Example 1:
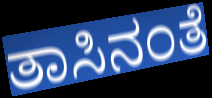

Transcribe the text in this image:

ತಾಸಿನಂತೆ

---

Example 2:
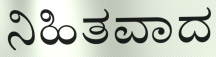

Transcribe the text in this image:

ನಿಹಿತವಾದ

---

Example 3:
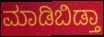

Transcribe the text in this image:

ಮಾಡಿಬಿಡ್ತಾ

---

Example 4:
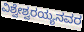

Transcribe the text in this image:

ವಿಶ್ವೇಶ್ವರಯ್ಯನವರ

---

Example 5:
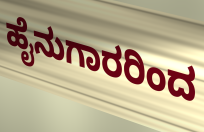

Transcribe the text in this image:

ಹೈನುಗಾರರಿಂದ